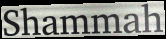
Shammah